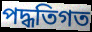
পদ্ধতিগত